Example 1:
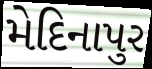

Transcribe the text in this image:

મેદિનાપુર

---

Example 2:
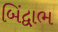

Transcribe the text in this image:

બિંદ્વાભ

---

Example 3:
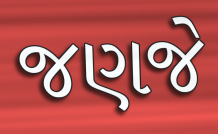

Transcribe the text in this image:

જણજે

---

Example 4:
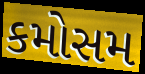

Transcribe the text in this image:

કમોસમ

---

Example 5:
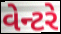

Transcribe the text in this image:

વેન્ટરે